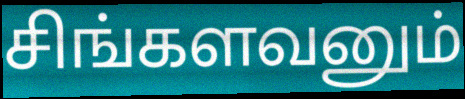
சிங்களவனும்